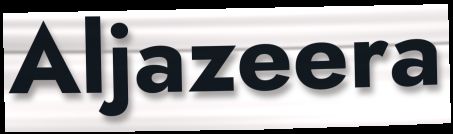
Aljazeera